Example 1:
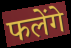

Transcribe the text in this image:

फलेंगे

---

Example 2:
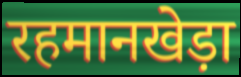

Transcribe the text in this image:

रहमानखेड़ा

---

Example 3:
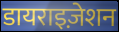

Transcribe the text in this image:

डायराइज़ेशन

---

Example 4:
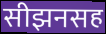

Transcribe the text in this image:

सीझनसह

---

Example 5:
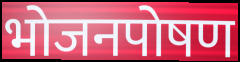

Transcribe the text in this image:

भोजनपोषण